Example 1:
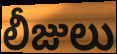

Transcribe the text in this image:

లీజులు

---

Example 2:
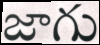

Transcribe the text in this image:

జాగు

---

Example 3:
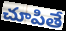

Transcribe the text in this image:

చూపితే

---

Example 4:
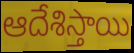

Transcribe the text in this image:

ఆదేశిస్తాయి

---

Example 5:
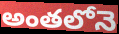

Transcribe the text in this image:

అంతలోనె